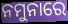
ନମୁନାରେ